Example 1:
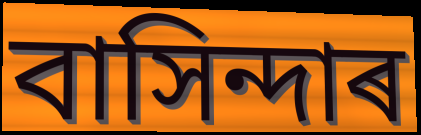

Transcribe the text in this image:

বাসিন্দাৰ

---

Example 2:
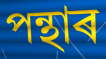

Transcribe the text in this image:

পন্থাৰ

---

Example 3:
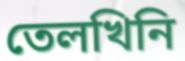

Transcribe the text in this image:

তেলখিনি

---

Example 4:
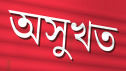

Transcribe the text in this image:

অসুখত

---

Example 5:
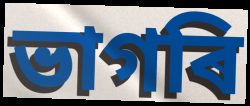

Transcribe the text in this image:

ভাগৰি